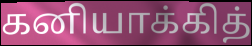
கனியாக்கித்